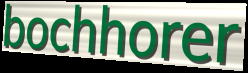
bochhorer